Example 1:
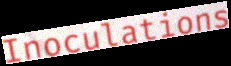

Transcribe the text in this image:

Inoculations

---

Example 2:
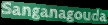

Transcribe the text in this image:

Sanganagouda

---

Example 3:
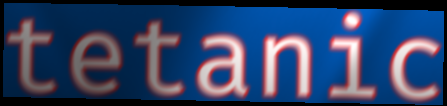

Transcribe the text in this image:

tetanic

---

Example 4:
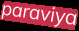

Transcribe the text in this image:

paraviya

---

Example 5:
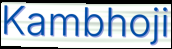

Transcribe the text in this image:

Kambhoji